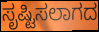
ಸೃಷ್ಟಿಸಲಾಗದ